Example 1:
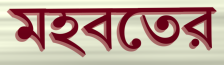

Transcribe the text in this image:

মহবতের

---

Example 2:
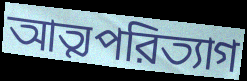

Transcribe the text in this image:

আত্মপরিত্যাগ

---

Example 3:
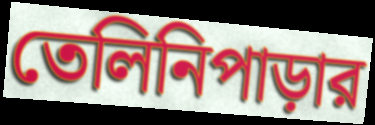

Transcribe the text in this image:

তেলিনিপাড়ার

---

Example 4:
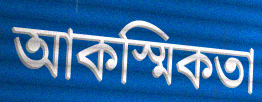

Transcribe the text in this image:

আকস্মিকতা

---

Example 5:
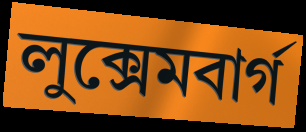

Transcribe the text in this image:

লুক্সেমবার্গ